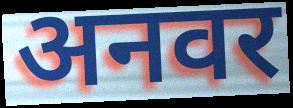
अनवर